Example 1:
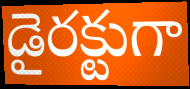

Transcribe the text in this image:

డైరక్టుగా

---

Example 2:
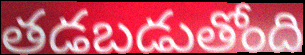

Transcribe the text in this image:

తడబడుతోంది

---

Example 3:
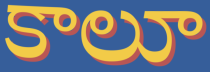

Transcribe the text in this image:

కాలూ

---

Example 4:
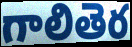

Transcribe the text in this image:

గాలితెర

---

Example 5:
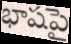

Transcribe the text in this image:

భాషపై